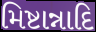
મિષ્ટાન્નાદિ